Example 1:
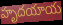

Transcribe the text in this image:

హృదయాయ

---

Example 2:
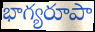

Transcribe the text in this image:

భాగ్యరూపా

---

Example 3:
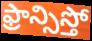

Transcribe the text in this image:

ఫ్రాన్సిస్తో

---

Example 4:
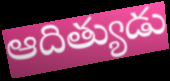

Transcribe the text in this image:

ఆదిత్యుడు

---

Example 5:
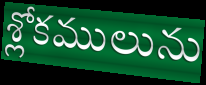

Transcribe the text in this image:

శ్లోకములును